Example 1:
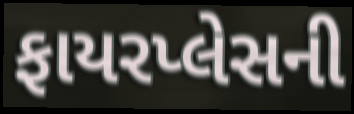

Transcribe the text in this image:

ફાયરપ્લેસની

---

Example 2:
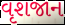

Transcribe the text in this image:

વૃશજાન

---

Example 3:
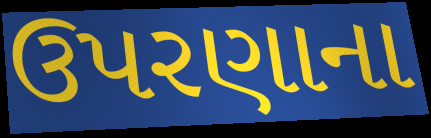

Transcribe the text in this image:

ઉપરણાના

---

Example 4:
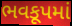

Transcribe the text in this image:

ભવકૂપમાં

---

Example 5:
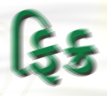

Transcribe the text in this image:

ફિક્ર